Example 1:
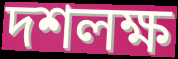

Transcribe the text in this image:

দশলক্ষ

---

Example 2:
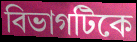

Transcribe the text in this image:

বিভাগটিকে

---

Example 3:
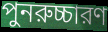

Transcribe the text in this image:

পুনরুচ্চারণ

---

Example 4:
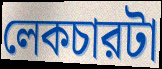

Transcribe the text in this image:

লেকচারটা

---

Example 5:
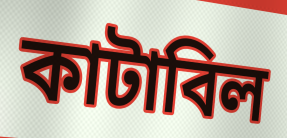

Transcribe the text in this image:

কাটাবিল